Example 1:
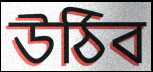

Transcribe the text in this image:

উঠিব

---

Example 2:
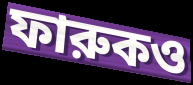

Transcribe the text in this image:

ফারুকও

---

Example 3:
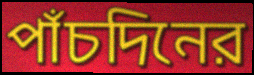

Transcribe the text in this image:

পাঁচদিনের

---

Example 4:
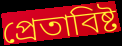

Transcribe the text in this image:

প্রেতাবিষ্ট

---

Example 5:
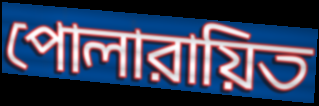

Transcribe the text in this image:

পোলারায়িত